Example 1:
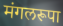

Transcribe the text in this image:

मंगलरूपा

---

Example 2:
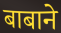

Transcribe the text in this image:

बाबाने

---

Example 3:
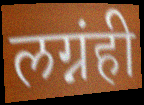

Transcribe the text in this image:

लग्नंही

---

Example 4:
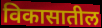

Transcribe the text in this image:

विकासातील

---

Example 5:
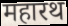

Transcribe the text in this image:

महारथ